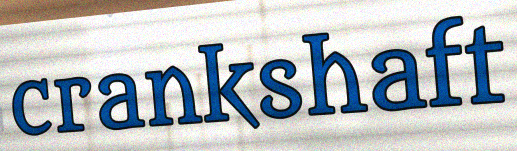
crankshaft